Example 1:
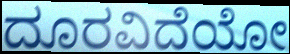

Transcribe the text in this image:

ದೂರವಿದೆಯೋ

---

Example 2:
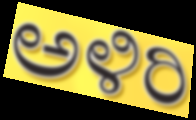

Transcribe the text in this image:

ಅಳಿರಿ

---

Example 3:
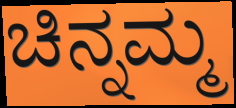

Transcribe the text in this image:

ಚಿನ್ನಮ್ಮ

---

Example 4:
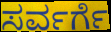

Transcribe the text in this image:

ಸರ್ವರ್ಗೆ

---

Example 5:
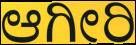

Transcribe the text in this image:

ಆಗೀರಿ